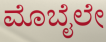
ಮೊಬೈಲೇ